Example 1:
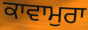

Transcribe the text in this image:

ਕਾਵਾਮੁਰਾ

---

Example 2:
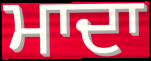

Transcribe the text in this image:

ਮਾਦਾ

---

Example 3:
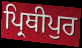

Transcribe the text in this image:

ਪ੍ਰਿਥੀਪੁਰ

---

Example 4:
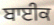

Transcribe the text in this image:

ਬਾਈਕ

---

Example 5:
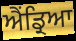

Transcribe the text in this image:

ਐਂਡ੍ਰਿਆ